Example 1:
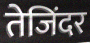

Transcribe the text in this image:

तेजिंदर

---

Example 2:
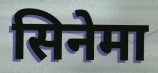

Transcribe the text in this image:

सिनेमा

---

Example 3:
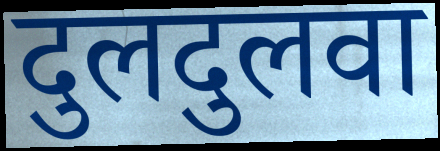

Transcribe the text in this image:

दुलदुलवा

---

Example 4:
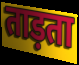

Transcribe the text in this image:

ताड़ता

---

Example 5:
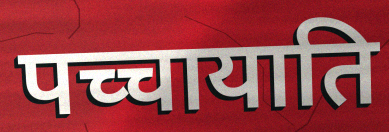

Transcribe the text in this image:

पच्चायाति